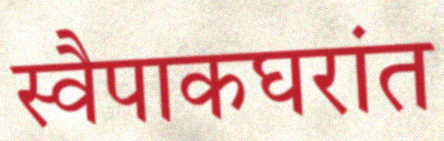
स्वैपाकघरांत